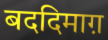
बददिमाग़